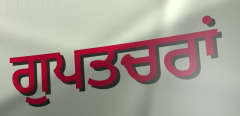
ਗੁਪਤਚਰਾਂ